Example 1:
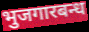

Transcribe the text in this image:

भुजगारबन्ध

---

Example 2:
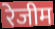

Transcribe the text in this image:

रेजीम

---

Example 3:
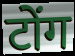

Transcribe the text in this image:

टोंग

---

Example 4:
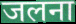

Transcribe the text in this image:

जलना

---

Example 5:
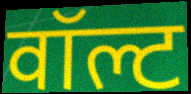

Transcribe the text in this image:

वॉल्ट